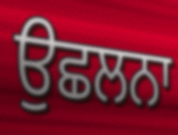
ਉਛਲਨਾ